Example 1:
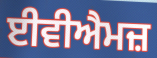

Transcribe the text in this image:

ਈਵੀਐਮਜ਼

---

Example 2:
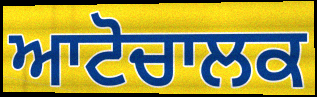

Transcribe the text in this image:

ਆਟੋਚਾਲਕ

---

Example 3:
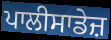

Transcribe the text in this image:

ਪਾਲੀਸਾਡੇਜ਼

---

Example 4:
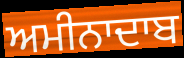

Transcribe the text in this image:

ਅਮੀਨਾਦਾਬ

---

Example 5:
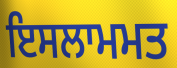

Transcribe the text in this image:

ਇਸਲਾਮਮਤ